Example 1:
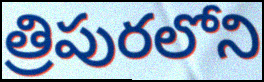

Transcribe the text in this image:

త్రిపురలోని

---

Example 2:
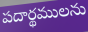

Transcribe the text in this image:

పదార్థములను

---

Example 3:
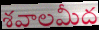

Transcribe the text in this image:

శవాలమీద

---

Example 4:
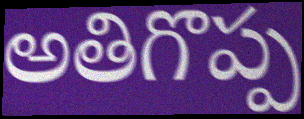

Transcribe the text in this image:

అతిగొప్ప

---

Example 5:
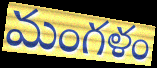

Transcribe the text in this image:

మంగళం